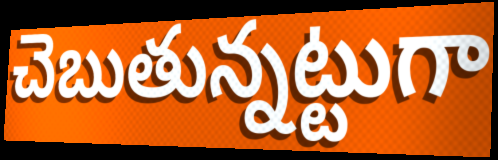
చెబుతున్నట్టుగా